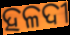
ହଳଦୀ